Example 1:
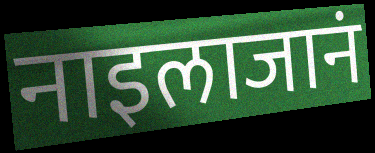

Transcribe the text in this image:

नाइलाजानं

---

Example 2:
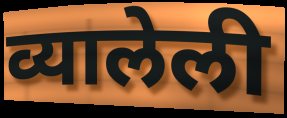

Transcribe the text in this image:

व्यालेली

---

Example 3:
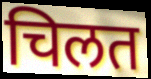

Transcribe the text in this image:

चिलत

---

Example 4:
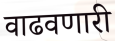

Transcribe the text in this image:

वाढवणारी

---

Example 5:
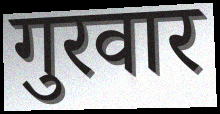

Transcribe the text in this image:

गुरवार